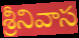
శ్రీనివాస